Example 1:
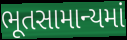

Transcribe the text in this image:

ભૂતસામાન્યમાં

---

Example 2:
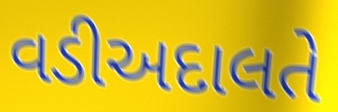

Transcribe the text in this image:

વડીઅદાલતે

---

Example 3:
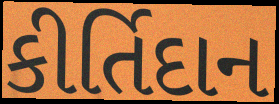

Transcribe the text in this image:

કીર્તિદાન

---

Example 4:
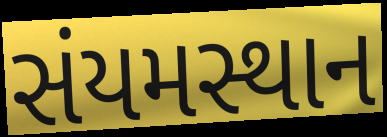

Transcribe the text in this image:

સંયમસ્થાન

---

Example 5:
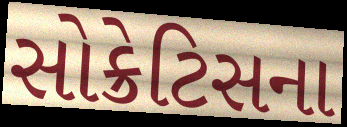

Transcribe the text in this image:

સોક્રેટિસના